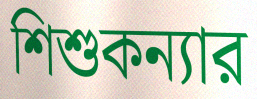
শিশুকন্যার